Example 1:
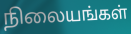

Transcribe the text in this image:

நிலையங்கள்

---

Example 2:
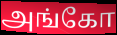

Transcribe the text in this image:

அங்கோ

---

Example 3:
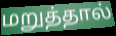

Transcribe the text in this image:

மறுத்தால்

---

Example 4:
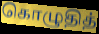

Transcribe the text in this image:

கொழுதித்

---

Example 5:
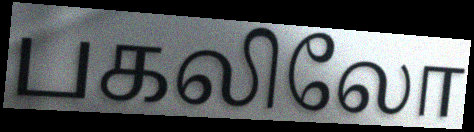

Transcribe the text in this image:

பகலிலோ